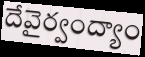
దేవైర్వంద్యాం